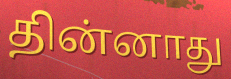
தின்னாது